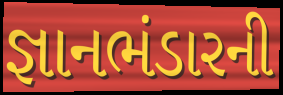
જ્ઞાનભંડારની